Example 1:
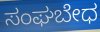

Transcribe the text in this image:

ಸಂಘಬೇಧ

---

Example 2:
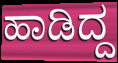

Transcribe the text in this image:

ಹಾಡಿದ್ದ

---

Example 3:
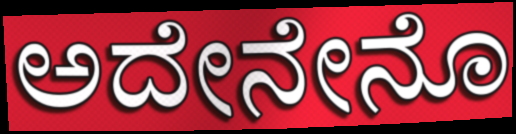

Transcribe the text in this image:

ಅದೇನೇನೊ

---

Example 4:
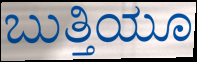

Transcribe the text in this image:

ಬುತ್ತಿಯೂ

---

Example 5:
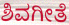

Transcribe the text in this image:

ಶಿವಗೀತೆ